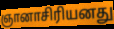
ஞானாசிரியனது